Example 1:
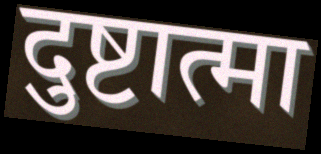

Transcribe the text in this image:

दुष्टात्मा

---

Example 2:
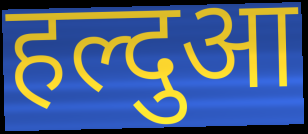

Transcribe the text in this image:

हल्दुआ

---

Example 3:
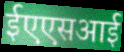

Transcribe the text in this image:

ईएएसआई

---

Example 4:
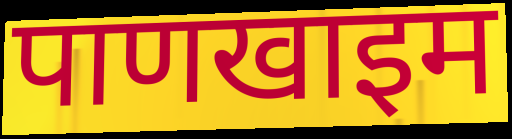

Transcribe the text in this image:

पाणखाइम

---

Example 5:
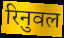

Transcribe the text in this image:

रिनुवल